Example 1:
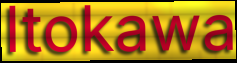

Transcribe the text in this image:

Itokawa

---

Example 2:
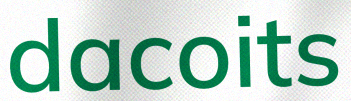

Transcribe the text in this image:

dacoits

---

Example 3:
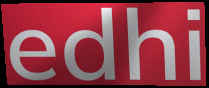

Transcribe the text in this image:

edhi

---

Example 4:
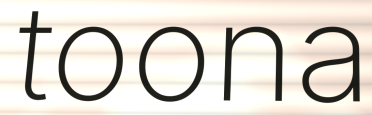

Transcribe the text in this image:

toona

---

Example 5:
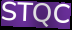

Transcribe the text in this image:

STQC